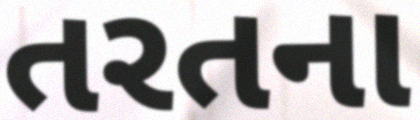
તરતના